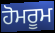
ਹੋਮਰੂਮ